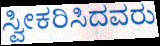
ಸ್ವೀಕರಿಸಿದವರು